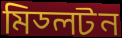
মিড্লটন